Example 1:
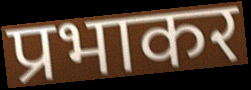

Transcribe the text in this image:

प्रभाकर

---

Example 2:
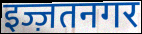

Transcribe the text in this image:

इज्ज़तनगर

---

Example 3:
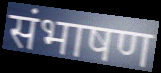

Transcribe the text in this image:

संभाषण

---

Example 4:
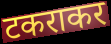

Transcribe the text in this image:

टकराकर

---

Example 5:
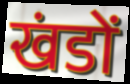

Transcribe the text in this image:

खंडों